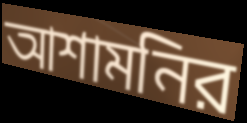
আশামনির